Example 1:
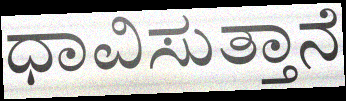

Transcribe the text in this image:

ಧಾವಿಸುತ್ತಾನೆ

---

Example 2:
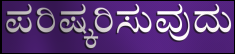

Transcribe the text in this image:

ಪರಿಷ್ಕರಿಸುವುದು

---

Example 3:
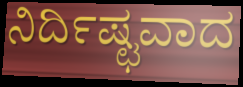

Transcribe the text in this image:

ನಿರ್ದಿಷ್ಟವಾದ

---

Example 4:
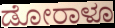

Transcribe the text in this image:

ಡೋರಾಳೂ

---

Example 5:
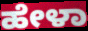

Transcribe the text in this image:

ಹೇಳಾ